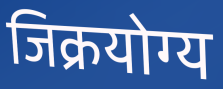
जिक्रयोग्य